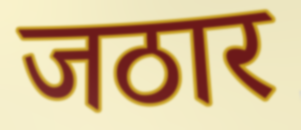
जठार